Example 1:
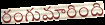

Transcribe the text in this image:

రంగుమారింది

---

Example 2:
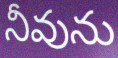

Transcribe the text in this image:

నీవును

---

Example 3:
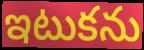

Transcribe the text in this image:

ఇటుకను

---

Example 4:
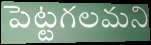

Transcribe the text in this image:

పెట్టగలమని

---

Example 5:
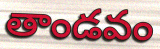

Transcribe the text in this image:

తాండవం